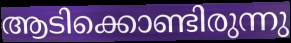
ആടിക്കൊണ്ടിരുന്നു